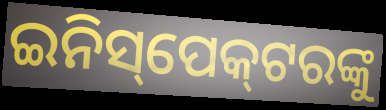
ଇନିସ୍‌ପେକ୍‌ଟରଙ୍କୁ